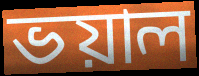
ভয়াল